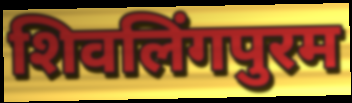
शिवलिंगपुरम